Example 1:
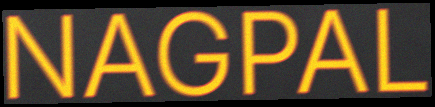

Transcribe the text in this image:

NAGPAL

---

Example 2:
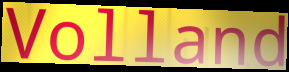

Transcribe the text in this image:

Volland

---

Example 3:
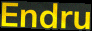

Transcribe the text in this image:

Endru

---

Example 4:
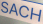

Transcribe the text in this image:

SACH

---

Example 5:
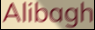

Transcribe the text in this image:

Alibagh